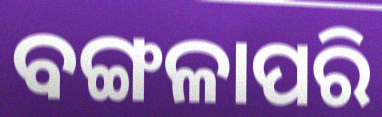
ବଙ୍ଗଳାପରି